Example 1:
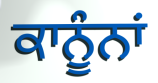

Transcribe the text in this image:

ਕਾਨੂੰਨਾਂ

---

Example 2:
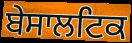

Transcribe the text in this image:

ਬੇਸਾਲਟਿਕ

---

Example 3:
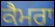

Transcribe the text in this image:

ਕੈਮਰਾ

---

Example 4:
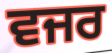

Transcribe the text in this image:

ਵਜਰ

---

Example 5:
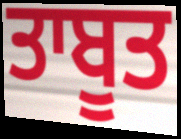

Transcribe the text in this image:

ਤਾਬੂਤ